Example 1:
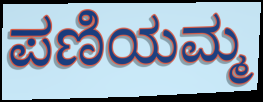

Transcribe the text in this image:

ಪಣಿಯಮ್ಮ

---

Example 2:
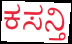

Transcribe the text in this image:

ಕಸನ್ತಿ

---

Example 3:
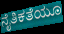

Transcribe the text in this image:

ನೈತಿಕತೆಯೂ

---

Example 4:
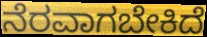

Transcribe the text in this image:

ನೆರವಾಗಬೇಕಿದೆ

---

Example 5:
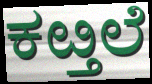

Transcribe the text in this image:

ಕೞ್ತಲೆ